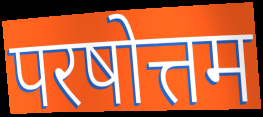
परषोत्तम